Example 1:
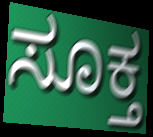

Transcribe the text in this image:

ಸೂಕ್ತ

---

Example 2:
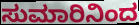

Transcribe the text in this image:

ಸುಮಾರಿನಿಂದ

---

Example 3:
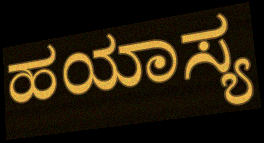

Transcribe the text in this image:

ಹಯಾಸ್ಯ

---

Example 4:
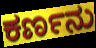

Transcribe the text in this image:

ಕರ್ಣನು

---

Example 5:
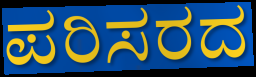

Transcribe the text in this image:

ಪರಿಸರದ